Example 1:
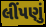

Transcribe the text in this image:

લીંપણું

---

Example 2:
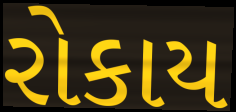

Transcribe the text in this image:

રોકાય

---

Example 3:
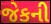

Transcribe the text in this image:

જેકની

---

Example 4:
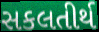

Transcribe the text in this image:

સકલતીર્થ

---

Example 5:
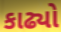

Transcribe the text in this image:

કાઢ્યો